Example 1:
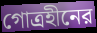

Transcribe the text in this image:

গোত্রহীনের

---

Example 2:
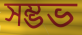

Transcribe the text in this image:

সম্ভভ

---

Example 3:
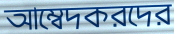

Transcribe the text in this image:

আম্বেদকরদের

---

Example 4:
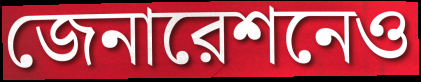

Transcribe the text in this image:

জেনারেশনেও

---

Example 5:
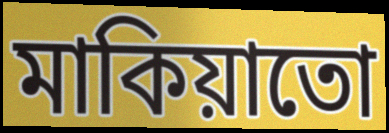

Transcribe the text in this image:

মাকিয়াতো